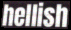
hellish